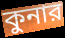
কুনার